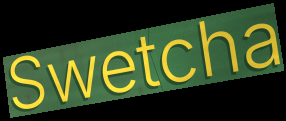
Swetcha